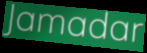
Jamadar